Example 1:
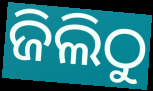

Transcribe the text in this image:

ଜିଲିଠୁ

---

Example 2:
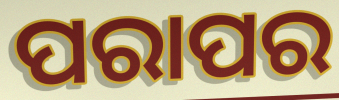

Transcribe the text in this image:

ପରାପର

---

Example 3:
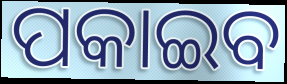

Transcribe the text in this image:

ପକାଇବ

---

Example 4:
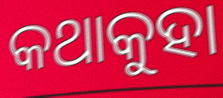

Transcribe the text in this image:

କଥାକୁହା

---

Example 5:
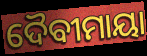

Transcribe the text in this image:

ଦୈବୀମାୟା